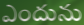
ఎందును